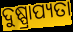
ଦୁଷ୍ପ୍ରାପ୍ୟତା